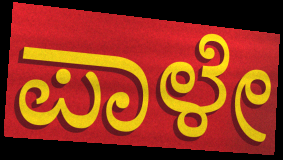
ಪಾಳೇ